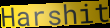
Harshit